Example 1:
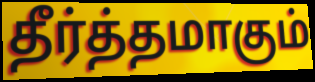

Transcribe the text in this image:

தீர்த்தமாகும்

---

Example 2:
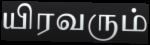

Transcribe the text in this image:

யிரவரும்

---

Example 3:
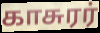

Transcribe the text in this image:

காசுரர்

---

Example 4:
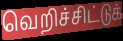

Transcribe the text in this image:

வெறிச்சிட்டுக்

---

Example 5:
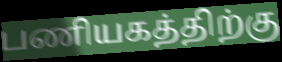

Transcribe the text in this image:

பணியகத்திற்கு